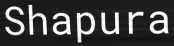
Shapura